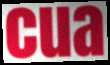
cua